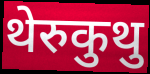
थेरुकुथु